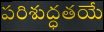
పరిశుద్ధతయే